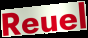
Reuel